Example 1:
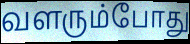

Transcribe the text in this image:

வளரும்போது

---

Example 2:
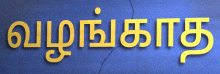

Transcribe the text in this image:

வழங்காத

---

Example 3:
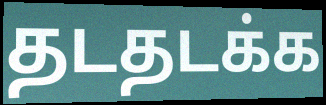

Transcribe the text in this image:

தடதடக்க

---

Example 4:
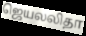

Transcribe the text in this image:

ஜெயலலிதா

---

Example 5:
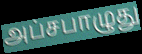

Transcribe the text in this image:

அப்சபாழுது